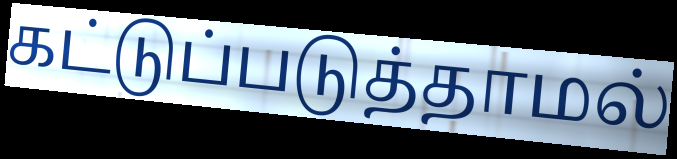
கட்டுப்படுத்தாமல்